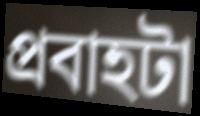
প্রবাহটা